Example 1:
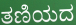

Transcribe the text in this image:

ತಣಿಯದ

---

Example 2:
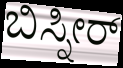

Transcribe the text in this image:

ಬಿಸ್ನೀರ್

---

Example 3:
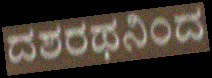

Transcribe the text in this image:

ದಶರಥನಿಂದ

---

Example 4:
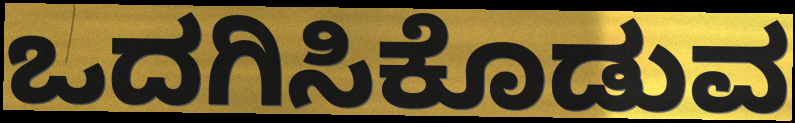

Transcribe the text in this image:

ಒದಗಿಸಿಕೊಡುವ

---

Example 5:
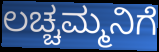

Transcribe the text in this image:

ಲಚ್ಚಮ್ಮನಿಗೆ